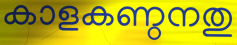
കാളകണ്ഠനതു